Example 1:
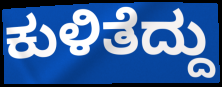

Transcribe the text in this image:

ಕುಳಿತೆದ್ದು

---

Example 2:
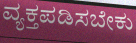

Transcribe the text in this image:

ವ್ಯಕ್ತಪಡಿಸಬೇಕು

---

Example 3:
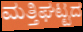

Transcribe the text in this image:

ಮತ್ತಿಘಟ್ಟದ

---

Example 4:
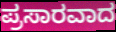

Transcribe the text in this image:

ಪ್ರಸಾರವಾದ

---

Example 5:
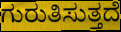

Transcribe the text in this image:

ಗುರುತಿಸುತ್ತದೆ